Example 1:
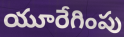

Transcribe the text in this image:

యూరేగింపు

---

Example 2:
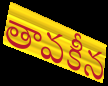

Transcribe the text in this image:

తావకీన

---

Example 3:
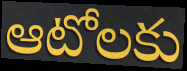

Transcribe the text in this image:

ఆటోలకు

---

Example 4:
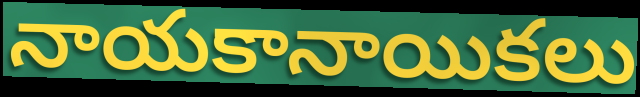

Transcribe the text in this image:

నాయకానాయికలు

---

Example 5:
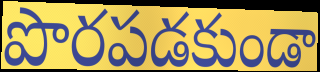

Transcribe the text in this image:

పొరపడకుండా